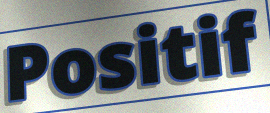
Positif